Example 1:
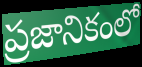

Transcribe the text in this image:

ప్రజానికంలో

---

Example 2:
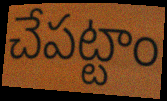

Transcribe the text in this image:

చేపట్టాం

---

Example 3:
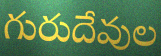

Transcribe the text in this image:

గురుదేవుల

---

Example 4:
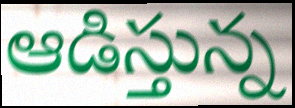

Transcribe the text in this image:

ఆడిస్తున్న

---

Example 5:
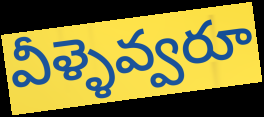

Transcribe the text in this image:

వీళ్ళెవ్వరూ